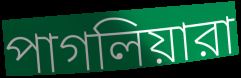
পাগলিয়ারা